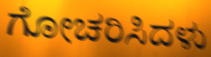
ಗೋಚರಿಸಿದಳು